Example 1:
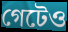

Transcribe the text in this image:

গেটেও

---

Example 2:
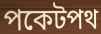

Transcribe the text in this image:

পকেটপথ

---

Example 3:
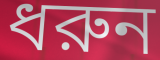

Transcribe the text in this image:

ধরুন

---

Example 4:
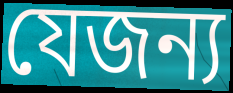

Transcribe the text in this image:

যেজন্য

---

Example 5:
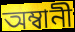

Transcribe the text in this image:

অম্বানী